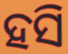
ହସି